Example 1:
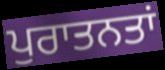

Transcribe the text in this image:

ਪੁਰਾਤਨਤਾਂ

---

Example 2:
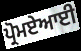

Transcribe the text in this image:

ਪ੍ਰੋਮਏਆਈ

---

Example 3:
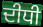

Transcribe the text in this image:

ਦੀਧੀ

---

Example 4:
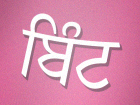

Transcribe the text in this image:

ਬਿੰਟ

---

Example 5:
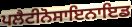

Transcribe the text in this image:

ਪਲੈਟੀਨੋਸਾਇਨਾਇਡ